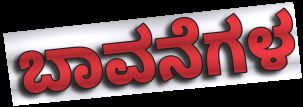
ಬಾವನೆಗಳ